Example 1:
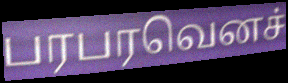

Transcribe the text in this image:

பரபரவெனச்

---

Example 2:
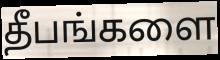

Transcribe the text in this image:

தீபங்களை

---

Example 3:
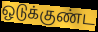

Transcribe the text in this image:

ஒடுக்குண்ட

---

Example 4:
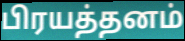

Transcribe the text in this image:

பிரயத்தனம்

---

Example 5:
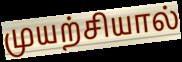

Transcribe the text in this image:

முயற்சியால்